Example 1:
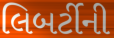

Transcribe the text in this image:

લિબર્ટીની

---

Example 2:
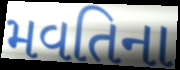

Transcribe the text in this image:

મવતિના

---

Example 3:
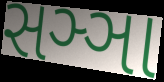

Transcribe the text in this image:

સઞ્ઞા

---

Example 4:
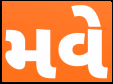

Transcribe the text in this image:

મવે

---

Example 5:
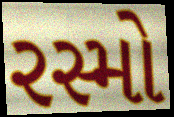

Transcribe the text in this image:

રસ્મો